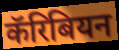
कॅरिबियन